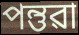
পন্তুৱা